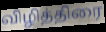
விழித்திரை